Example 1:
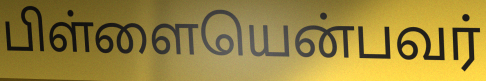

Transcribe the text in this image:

பிள்ளையென்பவர்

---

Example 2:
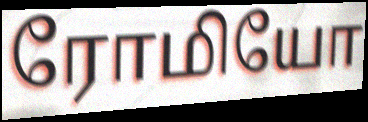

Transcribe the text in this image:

ரோமியோ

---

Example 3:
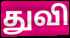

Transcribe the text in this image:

துவி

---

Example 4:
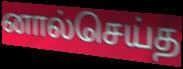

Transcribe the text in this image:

னால்செய்த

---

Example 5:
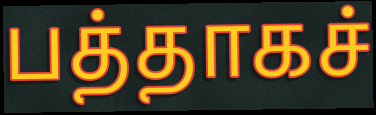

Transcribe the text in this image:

பத்தாகச்